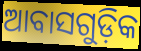
ଆବାସଗୁଡ଼ିକ